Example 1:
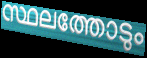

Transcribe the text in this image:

സ്ഥലത്തോടും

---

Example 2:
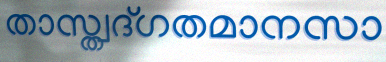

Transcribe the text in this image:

താസ്ത്വദ്ഗതമാനസാ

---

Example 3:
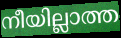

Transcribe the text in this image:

നീയില്ലാത്ത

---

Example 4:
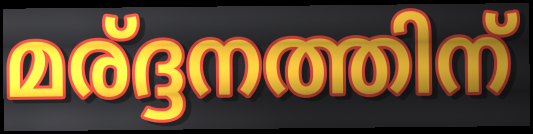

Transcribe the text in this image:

മര്ദ്ദനത്തിന്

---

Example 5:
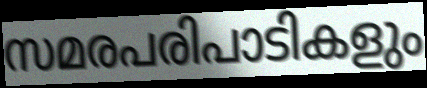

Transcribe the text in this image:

സമരപരിപാടികളും